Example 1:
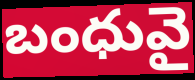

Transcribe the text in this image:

బంధువై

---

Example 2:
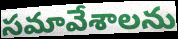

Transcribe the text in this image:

సమావేశాలను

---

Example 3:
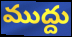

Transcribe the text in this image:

ముద్దు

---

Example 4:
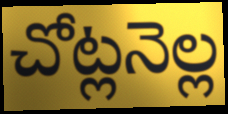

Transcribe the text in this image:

చోట్లనెల్ల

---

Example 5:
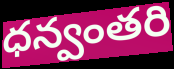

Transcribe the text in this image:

ధన్వంతరి